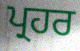
ਪ੍ਰਹਰ